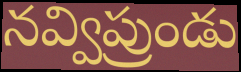
నవ్విప్రుండు